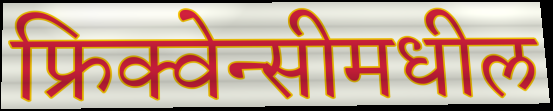
फ्रिक्वेन्सीमधील